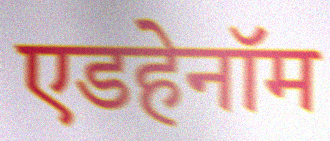
एडहेनॉम